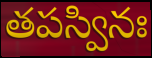
తపస్వినః